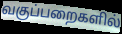
வகுப்பறைகளில்